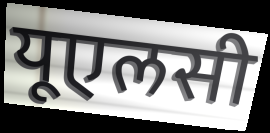
यूएलसी